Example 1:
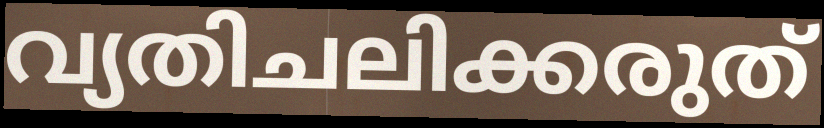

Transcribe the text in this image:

വ്യതിചലിക്കരുത്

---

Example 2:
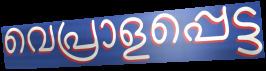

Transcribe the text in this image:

വെപ്രാളപ്പെട്ട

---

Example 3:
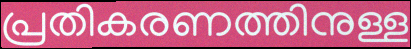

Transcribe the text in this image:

പ്രതികരണത്തിനുള്ള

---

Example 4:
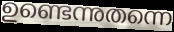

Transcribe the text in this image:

ഉണ്ടെന്നുതന്നെ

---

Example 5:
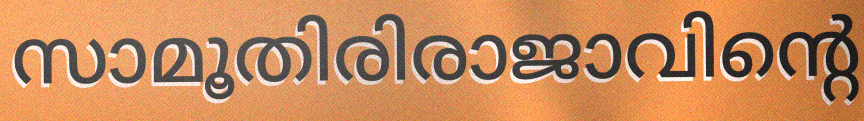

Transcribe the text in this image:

സാമൂതിരിരാജാവിന്റെ